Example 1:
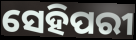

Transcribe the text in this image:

ସେହିପରୀ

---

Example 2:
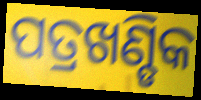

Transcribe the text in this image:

ପତ୍ରଖଣ୍ଡିକ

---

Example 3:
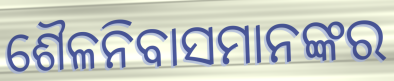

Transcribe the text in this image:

ଶୈଳନିବାସମାନଙ୍କର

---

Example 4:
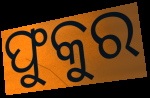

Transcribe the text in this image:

ଫୁକୁର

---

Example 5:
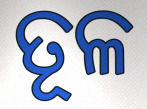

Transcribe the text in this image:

ତୂଳ